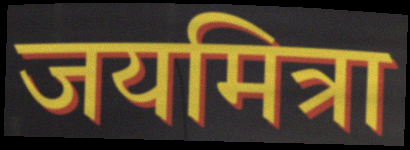
जयमित्रा